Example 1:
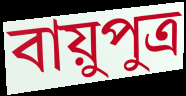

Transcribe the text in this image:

বায়ুপুত্র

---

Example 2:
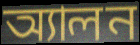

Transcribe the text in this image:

অ্যালন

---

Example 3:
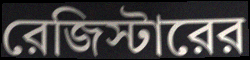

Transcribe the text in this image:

রেজিস্টারের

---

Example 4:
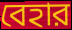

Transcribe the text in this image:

বেহার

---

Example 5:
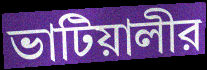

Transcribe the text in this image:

ভাটিয়ালীর